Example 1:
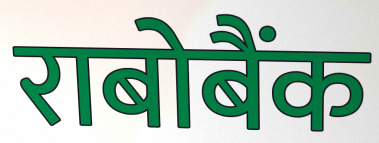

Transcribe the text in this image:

राबोबैंक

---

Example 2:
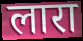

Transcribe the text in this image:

लारा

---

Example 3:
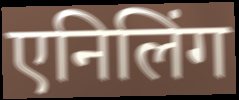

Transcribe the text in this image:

एनिलिंग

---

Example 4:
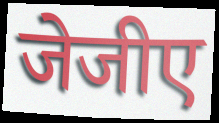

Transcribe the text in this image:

जेजीए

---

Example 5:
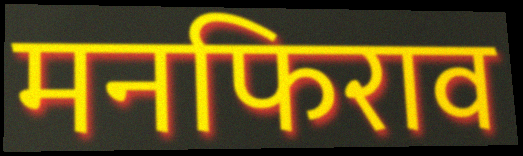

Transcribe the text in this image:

मनफिराव